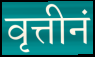
वृत्तीनं